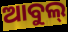
ଆବୁଲ୍